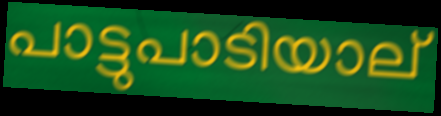
പാട്ടുപാടിയാല്